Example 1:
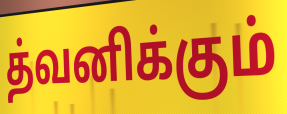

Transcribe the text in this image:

த்வனிக்கும்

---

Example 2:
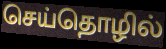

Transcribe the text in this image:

செய்தொழில்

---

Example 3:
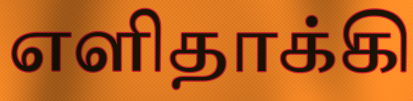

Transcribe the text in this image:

எளிதாக்கி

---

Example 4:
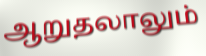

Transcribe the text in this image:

ஆறுதலாலும்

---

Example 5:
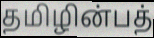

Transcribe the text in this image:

தமிழின்பத்